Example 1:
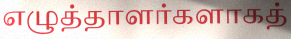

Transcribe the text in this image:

எழுத்தாளர்களாகத்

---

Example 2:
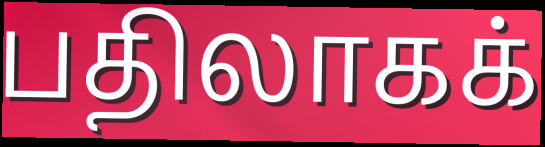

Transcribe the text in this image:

பதிலாகக்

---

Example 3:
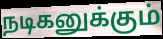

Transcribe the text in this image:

நடிகனுக்கும்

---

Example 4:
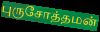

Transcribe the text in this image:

புருசோத்தமன்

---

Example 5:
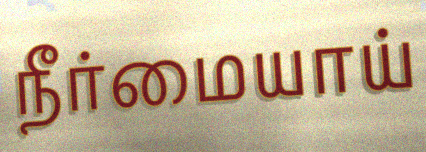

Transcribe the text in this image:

நீர்மையாய்